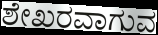
ಶೇಖರವಾಗುವ